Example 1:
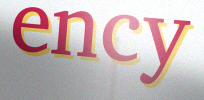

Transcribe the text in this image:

ency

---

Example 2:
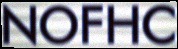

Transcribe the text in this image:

NOFHC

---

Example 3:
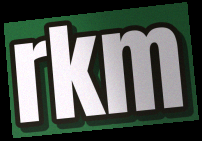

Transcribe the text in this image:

rkm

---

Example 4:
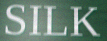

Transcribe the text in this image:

SILK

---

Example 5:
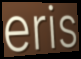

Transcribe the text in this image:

eris